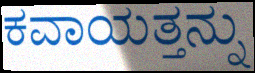
ಕವಾಯತ್ತನ್ನು